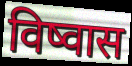
विष्वास